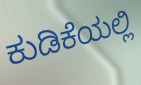
ಕುಡಿಕೆಯಲ್ಲಿ